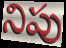
నిపు